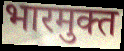
भारमुक्त